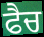
ਫੈਚ